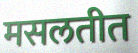
मसलतीत